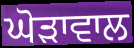
ਘੋੜਾਵਾਲ